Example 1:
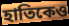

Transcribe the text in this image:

হাতিকেও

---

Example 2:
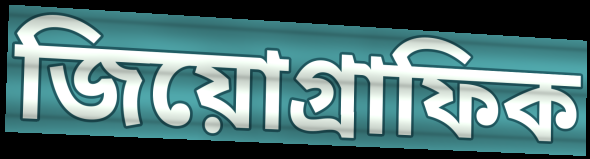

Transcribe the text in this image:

জিয়োগ্রাফিক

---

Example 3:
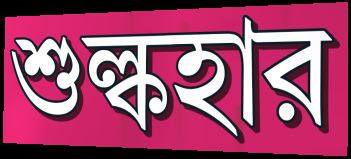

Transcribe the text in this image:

শুল্কহার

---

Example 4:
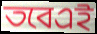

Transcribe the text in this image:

তবেএই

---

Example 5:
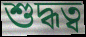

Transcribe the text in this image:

শুদ্ধত্ব